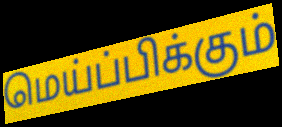
மெய்ப்பிக்கும்